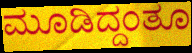
ಮೂಡಿದ್ದಂತೂ